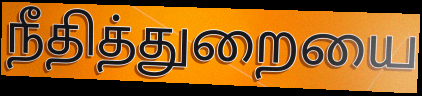
நீதித்துறையை